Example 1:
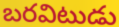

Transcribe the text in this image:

బరవిటుడు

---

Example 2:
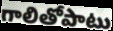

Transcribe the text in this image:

గాలితోపాటు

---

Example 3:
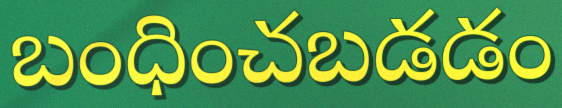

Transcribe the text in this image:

బంధించబడడం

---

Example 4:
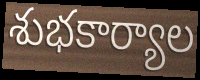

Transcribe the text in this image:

శుభకార్యాల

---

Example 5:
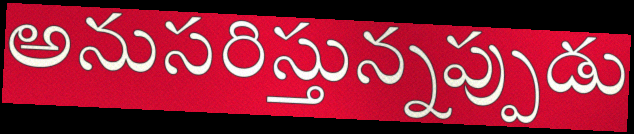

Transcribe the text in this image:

అనుసరిస్తున్నప్పుడు